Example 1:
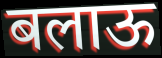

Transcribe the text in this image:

बलाऊ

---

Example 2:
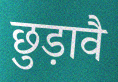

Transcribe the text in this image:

छुड़ावै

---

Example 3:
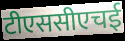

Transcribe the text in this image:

टीएससीएचई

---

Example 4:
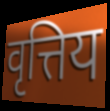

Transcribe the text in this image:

वृत्तिय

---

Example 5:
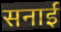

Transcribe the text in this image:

सनाई